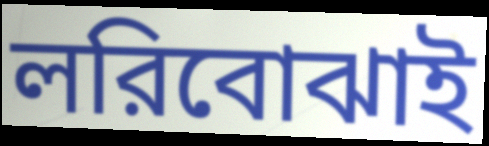
লরিবোঝাই